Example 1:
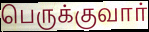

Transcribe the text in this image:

பெருக்குவார்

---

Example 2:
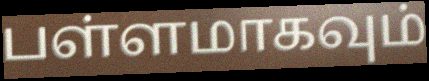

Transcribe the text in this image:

பள்ளமாகவும்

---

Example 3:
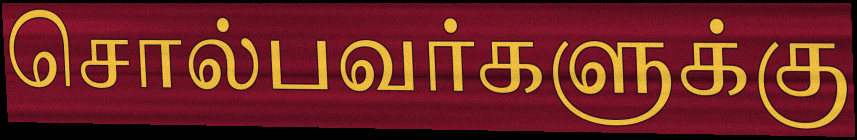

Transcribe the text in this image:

சொல்பவர்களுக்கு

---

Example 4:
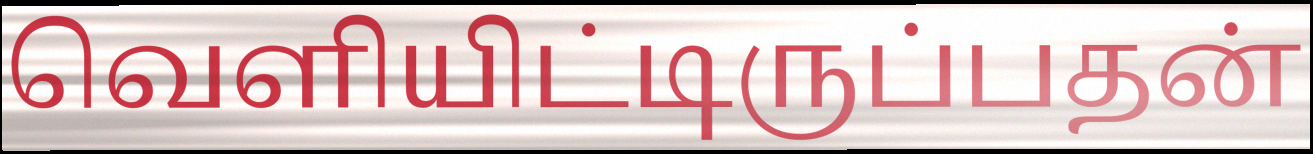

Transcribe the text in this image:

வெளியிட்டிருப்பதன்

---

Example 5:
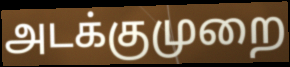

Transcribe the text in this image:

அடக்குமுறை